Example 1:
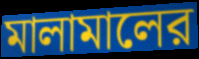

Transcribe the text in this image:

মালামালের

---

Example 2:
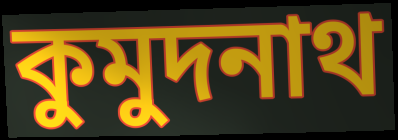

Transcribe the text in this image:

কুমুদনাথ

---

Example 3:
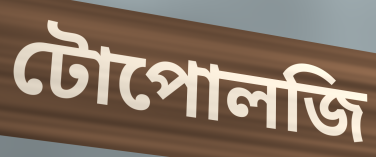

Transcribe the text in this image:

টোপোলজি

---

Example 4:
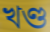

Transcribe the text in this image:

খণ্ড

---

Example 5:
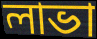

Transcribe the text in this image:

লাভা